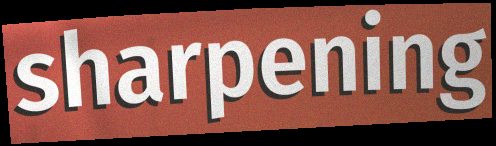
sharpening